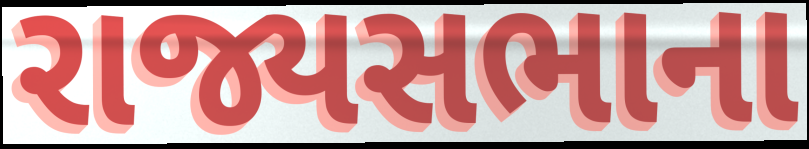
રાજ્યસભાના